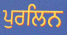
ਪੁਰਲਿਨ